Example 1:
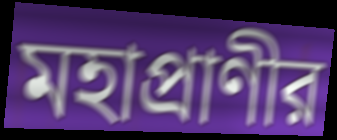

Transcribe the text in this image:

মহাপ্রাণীর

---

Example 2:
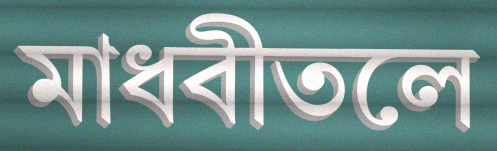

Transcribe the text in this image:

মাধবীতলে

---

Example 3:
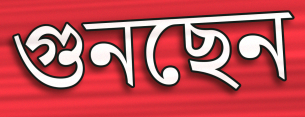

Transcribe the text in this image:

গুনছেন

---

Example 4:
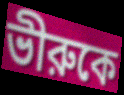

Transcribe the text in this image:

ভীরুকে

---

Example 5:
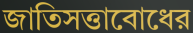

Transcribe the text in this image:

জাতিসত্তাবোধের